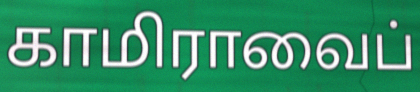
காமிராவைப்